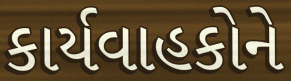
કાર્યવાહકોને